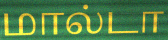
மால்டா